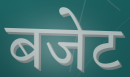
बजेट